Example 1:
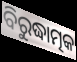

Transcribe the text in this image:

ବିରୁଦ୍ଧାତ୍ମକ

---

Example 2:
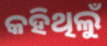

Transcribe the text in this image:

କହିଥିଲୁଁ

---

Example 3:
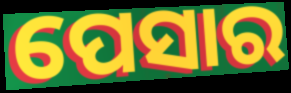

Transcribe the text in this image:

ପେସାର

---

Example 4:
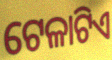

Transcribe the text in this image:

ଟେଳାଟିଏ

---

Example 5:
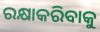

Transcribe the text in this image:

ରକ୍ଷାକରିବାକୁ